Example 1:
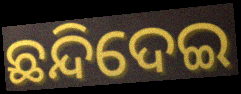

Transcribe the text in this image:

ଛନ୍ଦିଦେଇ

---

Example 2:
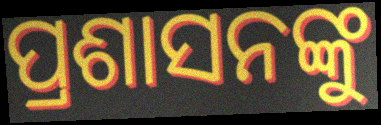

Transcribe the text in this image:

ପ୍ରଶାସନଙ୍କୁ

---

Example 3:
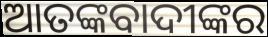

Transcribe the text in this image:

ଆତଙ୍କବାଦୀଙ୍କର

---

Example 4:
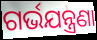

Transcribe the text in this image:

ଗର୍ଭଯନ୍ତ୍ରଣା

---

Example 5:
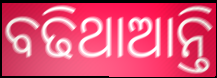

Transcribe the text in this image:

ବଢିଥାଆନ୍ତି